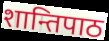
शान्तिपाठ